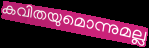
കവിതയുമൊന്നുമല്ല